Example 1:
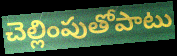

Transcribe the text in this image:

చెల్లింపుతోపాటు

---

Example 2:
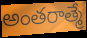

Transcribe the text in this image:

అంతరాత్మే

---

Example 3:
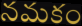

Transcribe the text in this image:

నమకం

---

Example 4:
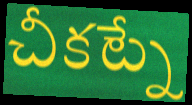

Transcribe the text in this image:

చీకట్నే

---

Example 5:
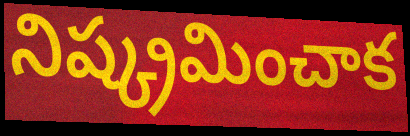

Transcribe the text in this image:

నిష్క్రమించాక